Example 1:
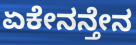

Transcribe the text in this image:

ಏಕೇನನ್ತೇನ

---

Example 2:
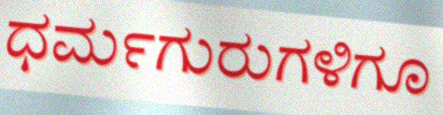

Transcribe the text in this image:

ಧರ್ಮಗುರುಗಳಿಗೂ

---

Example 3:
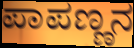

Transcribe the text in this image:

ಪಾಪಣ್ಣನ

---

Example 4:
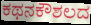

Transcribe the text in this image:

ಕಥನಕೌಶಲದ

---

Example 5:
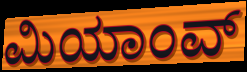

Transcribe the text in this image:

ಮಿಯಾಂವ್